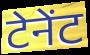
टेनेंट